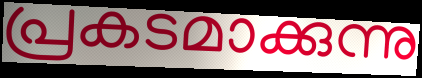
പ്രകടമാക്കുന്നു